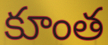
కూంత